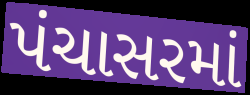
પંચાસરમાં